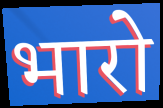
भारो